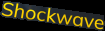
Shockwave